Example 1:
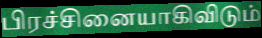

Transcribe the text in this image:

பிரச்சினையாகிவிடும்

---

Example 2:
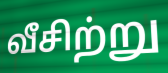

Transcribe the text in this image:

வீசிற்று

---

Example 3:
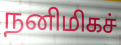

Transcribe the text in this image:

நனிமிகச்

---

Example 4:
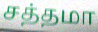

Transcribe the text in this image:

சத்தமா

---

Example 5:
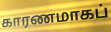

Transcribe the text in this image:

காரணமாகப்